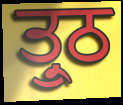
ਤ੍ਰੁਠ